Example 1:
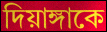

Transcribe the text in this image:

দিয়াঙ্গাকে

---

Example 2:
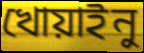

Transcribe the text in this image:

খোয়াইনু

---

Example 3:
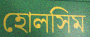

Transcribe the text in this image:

হোলসিম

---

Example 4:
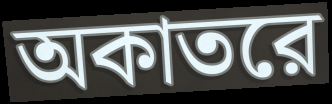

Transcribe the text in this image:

অকাতরে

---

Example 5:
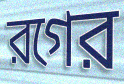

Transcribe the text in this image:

রগের